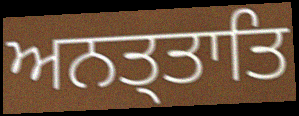
ਅਨਤ੍ਤਾਤਿ